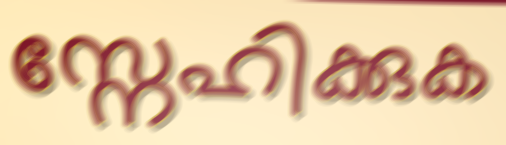
സ്നേഹിക്കുക